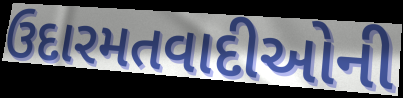
ઉદારમતવાદીઓની